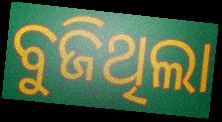
ବୁଜିଥିଲା